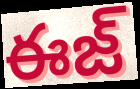
ఈజ్